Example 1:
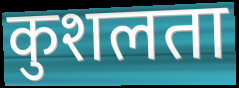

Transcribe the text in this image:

कुशलता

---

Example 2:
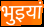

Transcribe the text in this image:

भुइयां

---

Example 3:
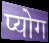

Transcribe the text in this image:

प्योग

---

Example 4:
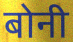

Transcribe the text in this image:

बोनी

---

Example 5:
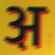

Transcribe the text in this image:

अ़